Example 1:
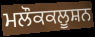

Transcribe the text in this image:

ਮਲੌਕਕਲੂਸ਼ਨ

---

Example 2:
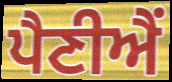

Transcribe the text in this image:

ਪੈਣੀਐਂ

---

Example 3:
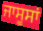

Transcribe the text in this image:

ਜਾਸੂਸਾਂ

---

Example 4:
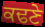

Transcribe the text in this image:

ਕਢਣੇ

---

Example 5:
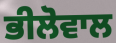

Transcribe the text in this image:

ਭੀਲੋਵਾਲ